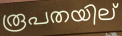
രൂപതയില്